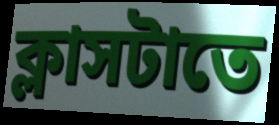
ক্লাসটাতে